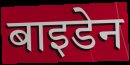
बाइडेन